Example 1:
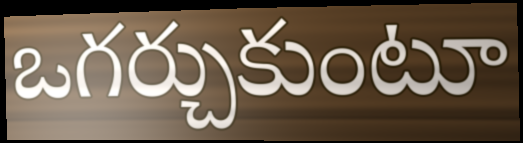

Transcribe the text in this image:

ఒగర్చుకుంటూ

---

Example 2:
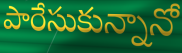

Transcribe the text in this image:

పారేసుకున్నానో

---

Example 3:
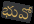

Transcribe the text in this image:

భువో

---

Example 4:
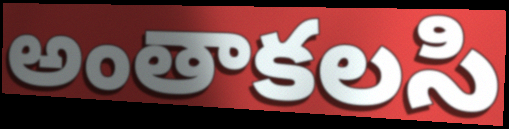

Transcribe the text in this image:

అంతాకలసి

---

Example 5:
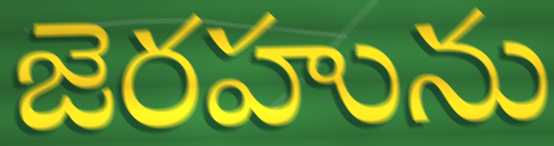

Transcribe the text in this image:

జెరహును